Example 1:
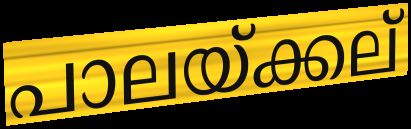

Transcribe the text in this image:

പാലയ്ക്കല്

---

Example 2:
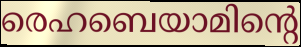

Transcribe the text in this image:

രെഹബെയാമിന്റെ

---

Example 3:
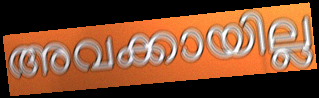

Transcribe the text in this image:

അവക്കായില്ല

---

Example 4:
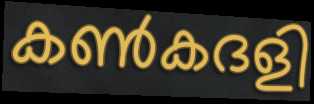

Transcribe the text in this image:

കൺകദളി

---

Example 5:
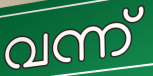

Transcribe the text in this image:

വന്ന്